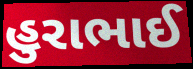
હુરાભાઈ